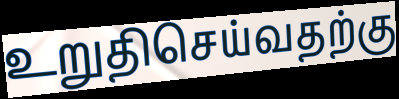
உறுதிசெய்வதற்கு